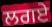
ਲਗਏ